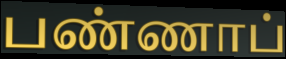
பண்ணாப்